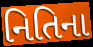
નિતિના